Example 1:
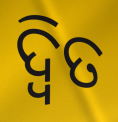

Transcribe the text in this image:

ଦ୍ୱିତ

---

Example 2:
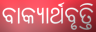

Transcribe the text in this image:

ବାକ୍ୟାର୍ଥବୃତ୍ତି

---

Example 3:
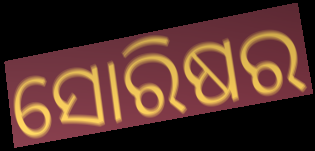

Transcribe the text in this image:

ସୋରିଷର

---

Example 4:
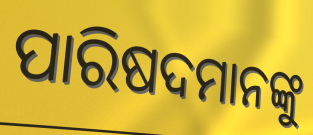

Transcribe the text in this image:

ପାରିଷଦମାନଙ୍କୁ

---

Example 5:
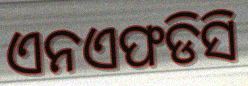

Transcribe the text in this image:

ଏନଏଫଡିସି